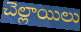
చెల్లాయిలు